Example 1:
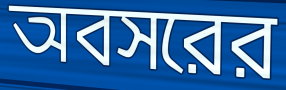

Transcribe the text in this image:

অবসরের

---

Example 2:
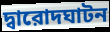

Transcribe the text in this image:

দ্বারোদঘাটন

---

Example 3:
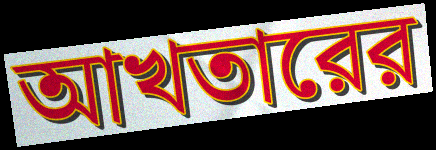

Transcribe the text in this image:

আখতারের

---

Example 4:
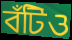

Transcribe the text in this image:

বঁটিও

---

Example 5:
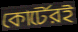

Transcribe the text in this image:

কোর্টেরই